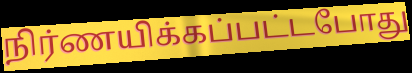
நிர்ணயிக்கப்பட்டபோது